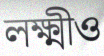
লক্ষ্মীও